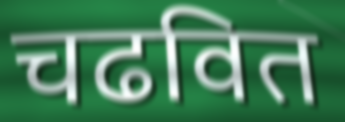
चढवित